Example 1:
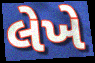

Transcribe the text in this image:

લેખે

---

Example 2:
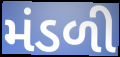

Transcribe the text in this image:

મંડળી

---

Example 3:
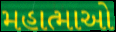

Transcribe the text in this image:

મહાત્માઓ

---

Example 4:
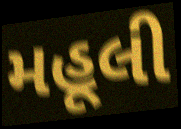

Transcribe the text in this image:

મહૂલી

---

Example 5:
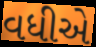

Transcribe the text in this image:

વધીએ